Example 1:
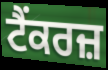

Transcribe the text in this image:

ਟੈਂਕਰਜ਼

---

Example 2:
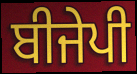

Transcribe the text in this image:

ਬੀਜੇਪੀ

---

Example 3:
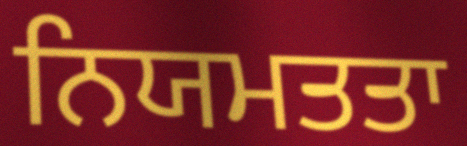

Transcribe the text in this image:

ਨਿਯਮਤਤਾ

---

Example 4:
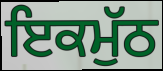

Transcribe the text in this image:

ਇਕਮੁੱਠ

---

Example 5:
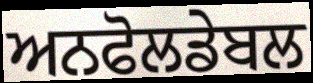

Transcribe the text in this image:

ਅਨਫੋਲਡੇਬਲ